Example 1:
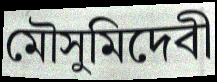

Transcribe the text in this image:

মৌসুমিদেবী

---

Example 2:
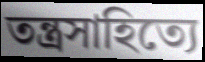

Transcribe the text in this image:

তন্ত্রসাহিত্যে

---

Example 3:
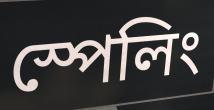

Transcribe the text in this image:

স্পেলিং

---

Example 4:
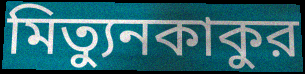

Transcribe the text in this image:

মিত্যুনকাকুর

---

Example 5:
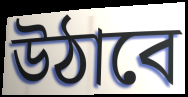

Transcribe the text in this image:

উঠাবে